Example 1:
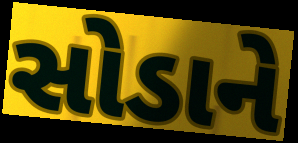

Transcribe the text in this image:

સોડાને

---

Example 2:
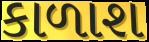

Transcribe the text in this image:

કાળાશ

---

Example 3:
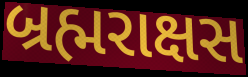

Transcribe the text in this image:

બ્રહ્મરાક્ષસ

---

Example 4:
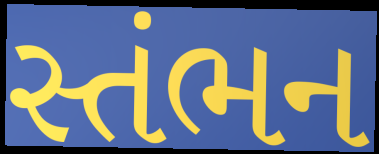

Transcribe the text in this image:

સ્તંભન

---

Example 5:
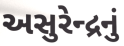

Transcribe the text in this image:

અસુરેન્દ્રનું